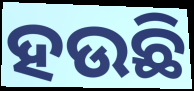
ହଉଛି